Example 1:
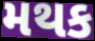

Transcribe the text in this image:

મથક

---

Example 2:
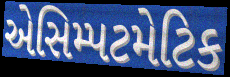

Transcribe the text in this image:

એસિમ્પટમેટિક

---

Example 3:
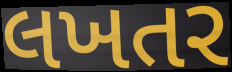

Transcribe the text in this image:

લખતર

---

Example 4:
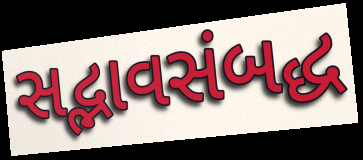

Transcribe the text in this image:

સદ્ભાવસંબદ્ધ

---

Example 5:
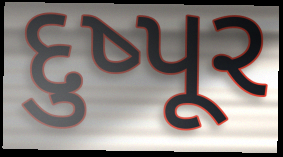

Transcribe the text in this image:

દુષ્પૂર